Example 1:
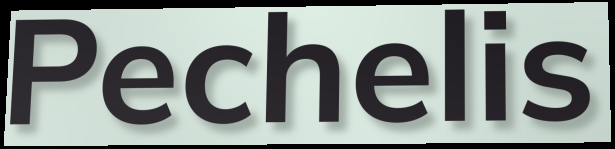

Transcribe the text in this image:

Pechelis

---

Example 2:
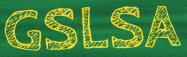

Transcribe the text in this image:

GSLSA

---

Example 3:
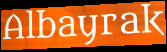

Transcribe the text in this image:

Albayrak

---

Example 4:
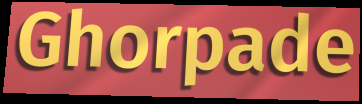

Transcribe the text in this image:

Ghorpade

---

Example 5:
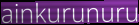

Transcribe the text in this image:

ainkurunuru